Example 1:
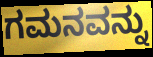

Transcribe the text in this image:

ಗಮನವನ್ನು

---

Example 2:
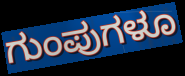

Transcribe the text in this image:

ಗುಂಪುಗಳೂ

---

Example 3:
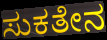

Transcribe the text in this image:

ಸುಕತೇನ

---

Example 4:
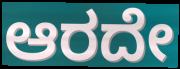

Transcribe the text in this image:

ಆರದೇ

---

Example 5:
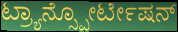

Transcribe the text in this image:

ಟ್ರ್ಯಾನ್ಸ್ಪೋರ್ಟೇಷನ್